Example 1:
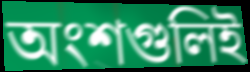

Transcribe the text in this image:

অংশগুলিই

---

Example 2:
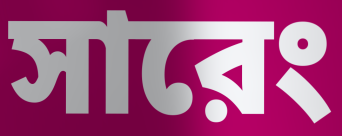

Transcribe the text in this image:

সারেং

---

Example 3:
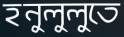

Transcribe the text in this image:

হনুলুলুতে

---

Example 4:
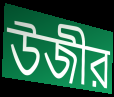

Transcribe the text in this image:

উজীর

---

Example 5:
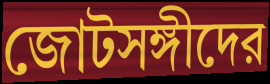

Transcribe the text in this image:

জোটসঙ্গীদের